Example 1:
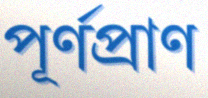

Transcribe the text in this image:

পূর্ণপ্রাণ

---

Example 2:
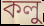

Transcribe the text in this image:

কলু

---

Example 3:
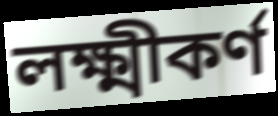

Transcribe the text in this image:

লক্ষ্মীকর্ণ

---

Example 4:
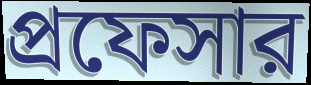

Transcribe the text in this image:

প্রফেসার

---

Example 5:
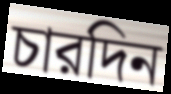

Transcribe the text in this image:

চারদিন